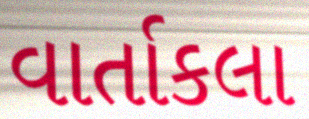
વાર્તાકલા